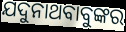
ଯଦୁନାଥବାବୁଙ୍କର